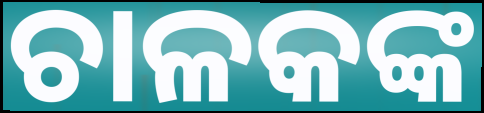
ଚାଳକଙ୍କ